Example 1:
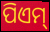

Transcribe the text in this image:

ପିଏମ୍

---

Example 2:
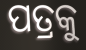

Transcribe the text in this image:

ପତ୍ରକୁ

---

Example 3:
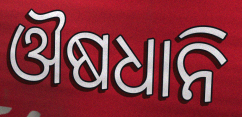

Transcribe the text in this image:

ଔଷଧାନି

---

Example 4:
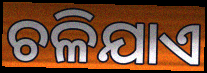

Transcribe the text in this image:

ଚଳିଯାଏ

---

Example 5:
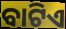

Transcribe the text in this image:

ବାଟିଏ